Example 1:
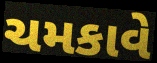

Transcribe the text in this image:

ચમકાવે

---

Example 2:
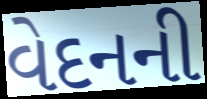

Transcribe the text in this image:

વેદનની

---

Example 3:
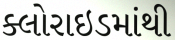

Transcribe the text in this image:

ક્લોરાઇડમાંથી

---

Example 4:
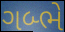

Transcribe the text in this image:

ગબ્ભે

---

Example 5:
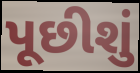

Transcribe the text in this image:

પૂછીશું